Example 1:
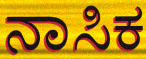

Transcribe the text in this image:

ನಾಸಿಕ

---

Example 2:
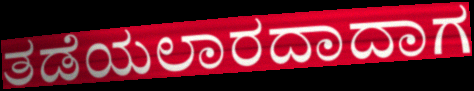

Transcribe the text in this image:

ತಡೆಯಲಾರದಾದಾಗ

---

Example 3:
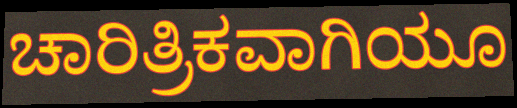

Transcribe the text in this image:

ಚಾರಿತ್ರಿಕವಾಗಿಯೂ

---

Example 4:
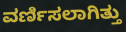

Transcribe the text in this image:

ವರ್ಣಿಸಲಾಗಿತ್ತು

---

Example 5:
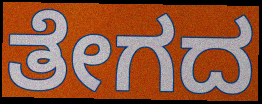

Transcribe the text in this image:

ತೇಗದ